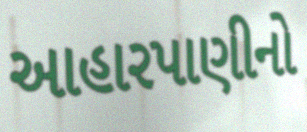
આહારપાણીનો